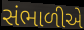
સંભાળીએ